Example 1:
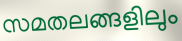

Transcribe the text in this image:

സമതലങ്ങളിലും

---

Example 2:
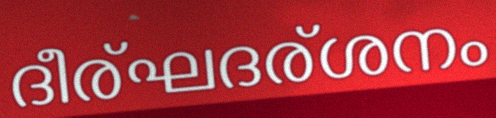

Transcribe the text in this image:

ദീര്ഘദര്ശനം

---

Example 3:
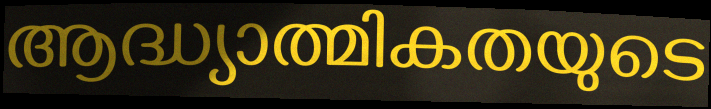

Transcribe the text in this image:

ആദ്ധ്യാത്മികതയുടെ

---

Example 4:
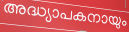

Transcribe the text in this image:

അദ്ധ്യാപകനായും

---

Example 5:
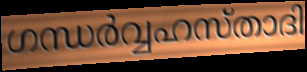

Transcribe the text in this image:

ഗന്ധർവ്വഹസ്താദി